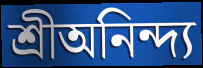
শ্রীঅনিন্দ্য